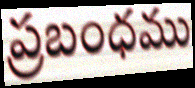
ప్రబంధము